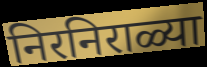
निरनिराळ्या